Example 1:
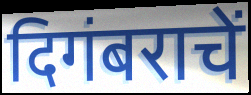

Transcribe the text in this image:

दिगंबराचें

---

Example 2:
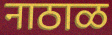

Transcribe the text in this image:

नाठाळ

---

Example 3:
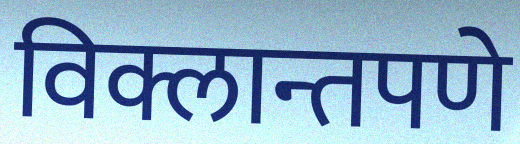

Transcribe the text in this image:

विक्लान्तपणे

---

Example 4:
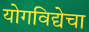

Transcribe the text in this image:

योगविद्येचा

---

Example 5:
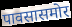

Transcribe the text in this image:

पावसासमोर